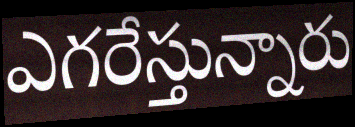
ఎగరేస్తున్నారు